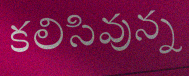
కలిసివున్న